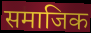
समाजिक